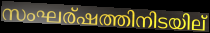
സംഘര്ഷത്തിനിടയില്